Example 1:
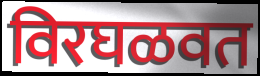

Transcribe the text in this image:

विरघळवत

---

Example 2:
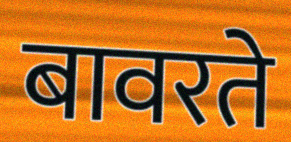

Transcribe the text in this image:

बावरते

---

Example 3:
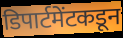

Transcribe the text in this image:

डिपार्टमेंटकडून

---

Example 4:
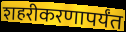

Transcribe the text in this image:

शहरीकरणापर्यंत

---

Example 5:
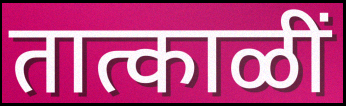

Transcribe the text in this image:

तात्काळीं